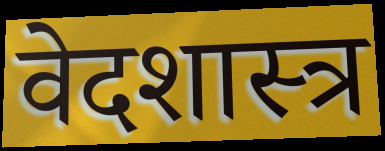
वेदशास्त्र